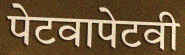
पेटवापेटवी